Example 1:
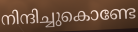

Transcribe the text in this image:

നിന്ദിച്ചുകൊണ്ടേ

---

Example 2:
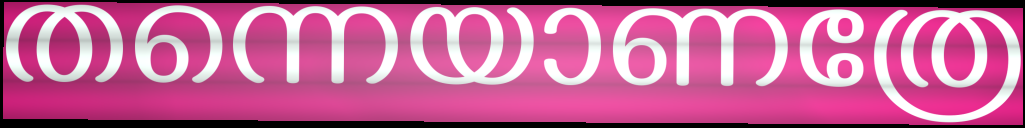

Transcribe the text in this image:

തന്നെയാണത്രേ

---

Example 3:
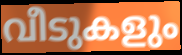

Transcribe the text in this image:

വീടുകളും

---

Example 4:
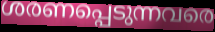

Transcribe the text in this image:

ശരണപ്പെടുന്നവരെ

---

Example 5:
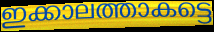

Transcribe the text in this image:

ഇക്കാലത്താകട്ടെ